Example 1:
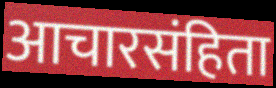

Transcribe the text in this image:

आचारसंहिता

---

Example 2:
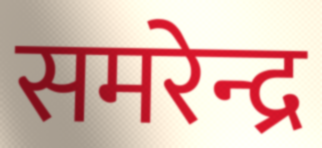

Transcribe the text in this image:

समरेन्द्र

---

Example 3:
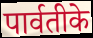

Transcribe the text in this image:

पार्वतीके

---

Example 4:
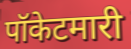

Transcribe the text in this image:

पॉकेटमारी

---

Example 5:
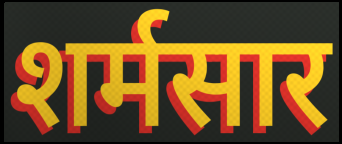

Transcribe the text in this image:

शर्मसार